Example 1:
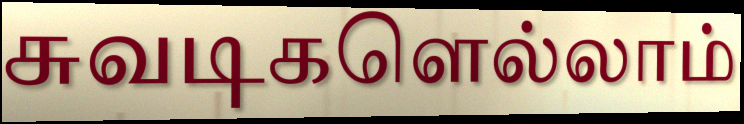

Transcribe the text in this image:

சுவடிகளெல்லாம்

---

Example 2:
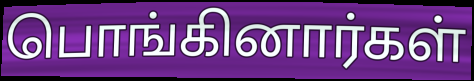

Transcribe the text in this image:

பொங்கினார்கள்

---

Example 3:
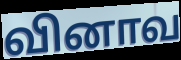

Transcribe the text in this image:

வினாவ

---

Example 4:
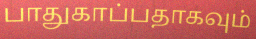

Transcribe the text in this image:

பாதுகாப்பதாகவும்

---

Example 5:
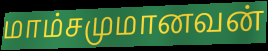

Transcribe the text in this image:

மாம்சமுமானவன்